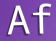
Af